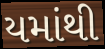
યમાંથી